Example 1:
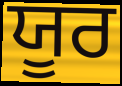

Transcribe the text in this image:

ਯੂਰ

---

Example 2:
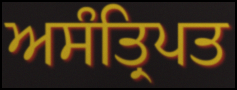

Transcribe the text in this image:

ਅਸੰਤ੍ਰਿਪਤ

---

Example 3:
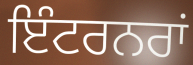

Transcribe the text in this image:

ਇੰਟਰਨਰਾਂ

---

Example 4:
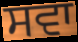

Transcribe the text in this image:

ਸਵਾ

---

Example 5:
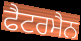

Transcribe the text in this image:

ਫੈਟਰਮੈਨ